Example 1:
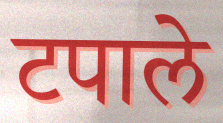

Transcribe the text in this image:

टपाले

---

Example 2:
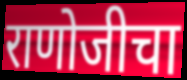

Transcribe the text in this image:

राणोजीचा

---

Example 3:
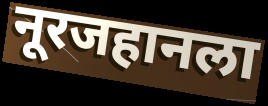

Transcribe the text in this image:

नूरजहानला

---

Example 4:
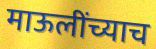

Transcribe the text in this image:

माऊलींच्याच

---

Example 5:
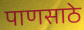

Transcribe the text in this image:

पाणसाठे